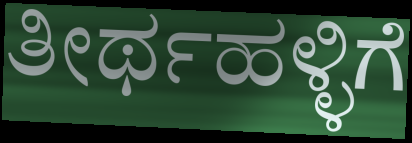
ತೀರ್ಥಹಳ್ಳಿಗೆ